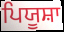
ਪਿਯੂਸ਼ਾ